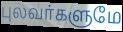
புலவர்களுமே